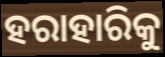
ହରାହାରିକୁ